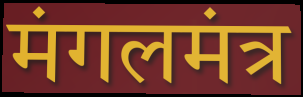
मंगलमंत्र